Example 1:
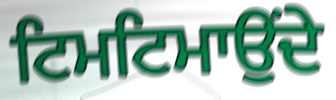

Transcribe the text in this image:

ਟਿਮਟਿਮਾਉਂਦੇ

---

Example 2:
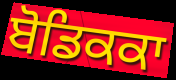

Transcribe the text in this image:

ਬੋਡਿਕਕਾ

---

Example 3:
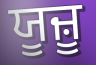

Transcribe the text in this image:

ਯੂਜ਼ੂ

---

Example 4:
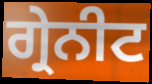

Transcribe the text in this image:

ਗ੍ਰੇਨੀਟ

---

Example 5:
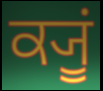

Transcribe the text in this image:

ਕ੍ਯੂਂ